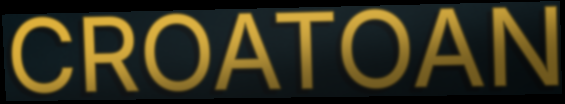
CROATOAN